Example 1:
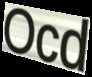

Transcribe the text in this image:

Ocd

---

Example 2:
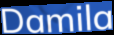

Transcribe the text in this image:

Damila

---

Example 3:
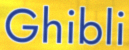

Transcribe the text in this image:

Ghibli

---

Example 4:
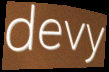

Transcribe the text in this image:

devy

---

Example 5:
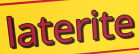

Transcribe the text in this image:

laterite